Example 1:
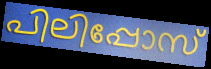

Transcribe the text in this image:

പിലിപ്പോസ്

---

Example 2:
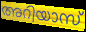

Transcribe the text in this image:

അറിയാസ്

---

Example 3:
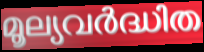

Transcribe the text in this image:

മൂല്യവർദ്ധിത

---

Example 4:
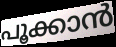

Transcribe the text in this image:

പൂക്കാൻ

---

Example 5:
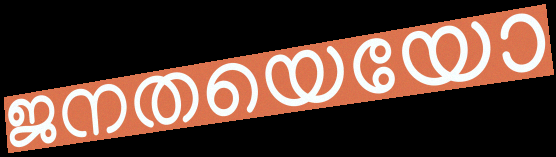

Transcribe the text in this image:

ജനതയെയോ